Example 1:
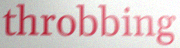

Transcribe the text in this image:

throbbing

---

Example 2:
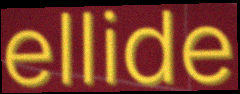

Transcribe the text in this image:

ellide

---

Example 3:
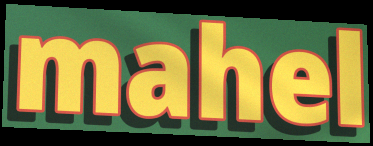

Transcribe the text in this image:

mahel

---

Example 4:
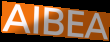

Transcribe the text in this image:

AIBEA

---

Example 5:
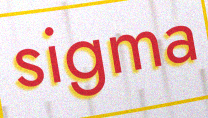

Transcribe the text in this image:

sigma